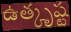
ఉత్కృష్ట